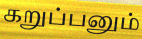
கறுப்பனும்